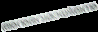
അനുഭവമായിരുന്നു